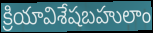
క్రియావిశేషబహులాం